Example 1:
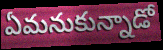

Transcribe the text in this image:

ఏమనుకున్నాడో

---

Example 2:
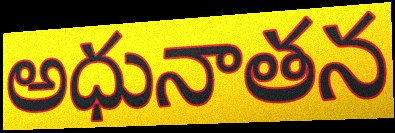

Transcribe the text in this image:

అధునాతన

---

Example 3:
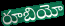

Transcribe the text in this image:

రూబియో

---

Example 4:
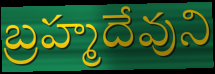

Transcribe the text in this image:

బ్రహ్మదేవుని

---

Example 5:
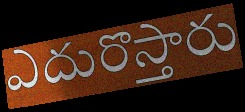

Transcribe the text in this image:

ఎదురొస్తారు